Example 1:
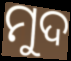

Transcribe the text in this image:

ମୁଦ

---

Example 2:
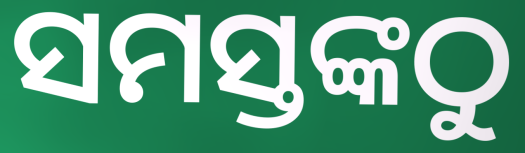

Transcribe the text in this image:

ସମସ୍ତଙ୍କଠୁ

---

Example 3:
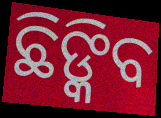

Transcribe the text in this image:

ଛିଙ୍କିବ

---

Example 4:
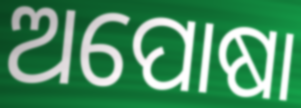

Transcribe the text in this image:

ଅପୋଷା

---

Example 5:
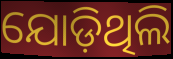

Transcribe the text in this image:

ଯୋଡ଼ିଥିଲି